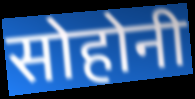
सोहोनी